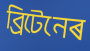
ব্ৰিটেনেৰ